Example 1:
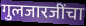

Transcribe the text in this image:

गुलजारजींचा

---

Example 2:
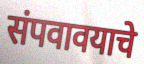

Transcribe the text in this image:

संपवावयाचे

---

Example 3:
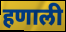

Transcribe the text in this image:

हणाली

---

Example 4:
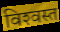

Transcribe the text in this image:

विश्वस्त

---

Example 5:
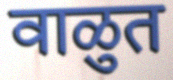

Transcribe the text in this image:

वाळुत